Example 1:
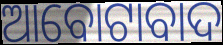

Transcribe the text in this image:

ଆବୋଟାବାଦ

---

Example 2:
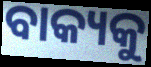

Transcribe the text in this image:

ବାକ୍ୟକୁ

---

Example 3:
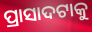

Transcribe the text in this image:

ପ୍ରାସାଦଟାକୁ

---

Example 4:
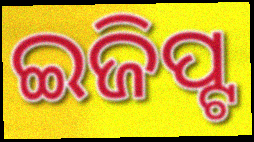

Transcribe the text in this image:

ଇଜିପ୍ଟ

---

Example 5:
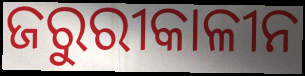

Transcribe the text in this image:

ଜରୁରୀକାଳୀନ